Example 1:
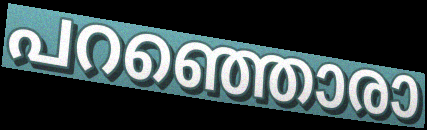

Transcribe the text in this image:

പറഞ്ഞൊരാ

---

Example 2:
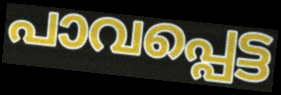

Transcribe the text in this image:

പാവപ്പെട്ട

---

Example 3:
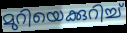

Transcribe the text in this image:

മുറിയെക്കുറിച്ച്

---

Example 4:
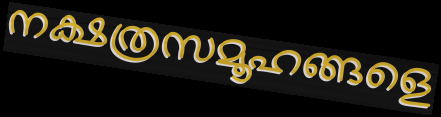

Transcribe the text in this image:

നക്ഷത്രസമൂഹങ്ങളെ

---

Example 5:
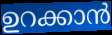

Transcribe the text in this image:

ഉറക്കാൻ